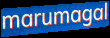
marumagal